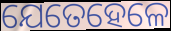
ଯେତେହେଳେ